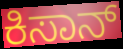
ಕಿಸಾನ್